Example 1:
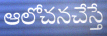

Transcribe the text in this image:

ఆలోచనచేస్తే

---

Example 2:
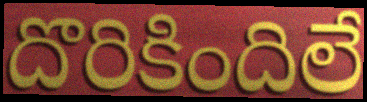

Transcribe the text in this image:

దొరికిందిలే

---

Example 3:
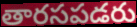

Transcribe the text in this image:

తారసపడరు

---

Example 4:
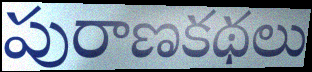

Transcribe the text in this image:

పురాణకథలు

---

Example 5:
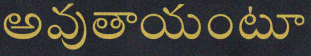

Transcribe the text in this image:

అవుతాయంటూ